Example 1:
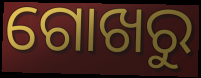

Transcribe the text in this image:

ଗୋଖରୁ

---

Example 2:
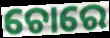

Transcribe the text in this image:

ଚୋରେ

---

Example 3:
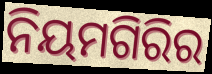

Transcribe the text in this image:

ନିୟମଗିରିର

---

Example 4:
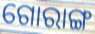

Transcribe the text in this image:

ଗୋରାଙ୍ଗ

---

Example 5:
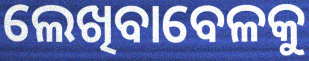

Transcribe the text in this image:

ଲେଖିବାବେଳକୁ